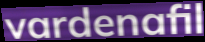
vardenafil